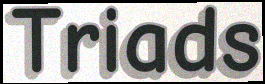
Triads